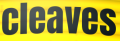
cleaves